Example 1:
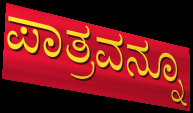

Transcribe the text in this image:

ಪಾತ್ರವನ್ನೂ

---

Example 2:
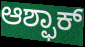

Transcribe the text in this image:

ಆಶ್ಫಾಕ್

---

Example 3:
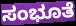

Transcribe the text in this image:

ಸಂಭೂತೆ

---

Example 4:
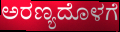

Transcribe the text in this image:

ಅರಣ್ಯದೊಳಗೆ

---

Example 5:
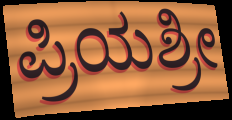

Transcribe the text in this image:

ಪ್ರಿಯಶ್ರೀ